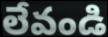
లేవండి